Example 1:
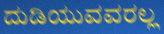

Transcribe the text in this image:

ದುಡಿಯುವವರಲ್ಲ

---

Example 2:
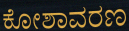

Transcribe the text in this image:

ಕೋಶಾವರಣ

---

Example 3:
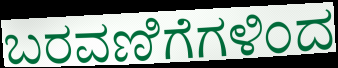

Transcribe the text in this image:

ಬರವಣಿಗೆಗಳಿಂದ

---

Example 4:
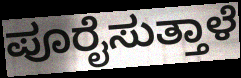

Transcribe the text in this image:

ಪೂರೈಸುತ್ತಾಳೆ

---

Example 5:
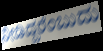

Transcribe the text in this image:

ನೀಡಿದ್ದರೆಂಬುದು